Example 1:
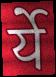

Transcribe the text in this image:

र्ये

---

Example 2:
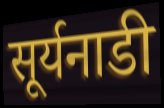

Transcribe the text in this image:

सूर्यनाडी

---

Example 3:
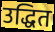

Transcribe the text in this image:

उद्धित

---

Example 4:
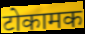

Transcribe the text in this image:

टोकामक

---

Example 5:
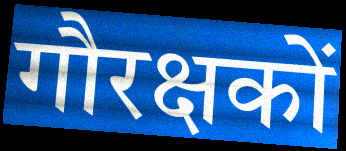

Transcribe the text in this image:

गौरक्षकों